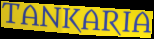
TANKARIA